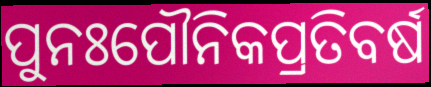
ପୁନଃପୌନିକପ୍ରତିବର୍ଷ